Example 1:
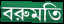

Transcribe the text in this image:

বরুমতি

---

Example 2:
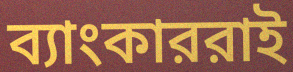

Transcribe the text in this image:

ব্যাংকাররাই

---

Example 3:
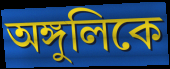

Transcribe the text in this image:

অঙ্গুলিকে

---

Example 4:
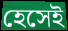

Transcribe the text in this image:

হেসেই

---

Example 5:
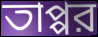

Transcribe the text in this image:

তাপ্পর